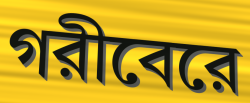
গরীবেরে